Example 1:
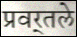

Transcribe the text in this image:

प्रवर्तले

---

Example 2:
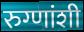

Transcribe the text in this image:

रुग्णांशी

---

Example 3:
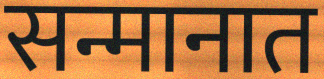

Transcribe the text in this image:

सन्मानात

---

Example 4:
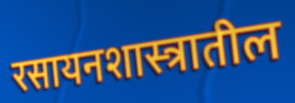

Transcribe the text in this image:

रसायनशास्त्रातील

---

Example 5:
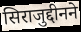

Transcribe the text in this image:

सिराजुद्दीनने